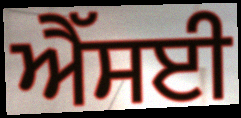
ਐੱਸਈ